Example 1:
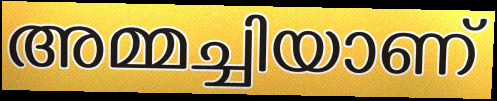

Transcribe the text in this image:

അമ്മച്ചിയാണ്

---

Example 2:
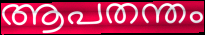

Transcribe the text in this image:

ആപതന്തം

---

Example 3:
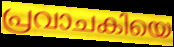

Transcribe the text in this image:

പ്രവാചകിയെ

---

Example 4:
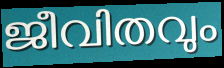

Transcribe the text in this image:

ജീവിതവും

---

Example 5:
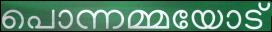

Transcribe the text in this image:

പൊന്നമ്മയോട്